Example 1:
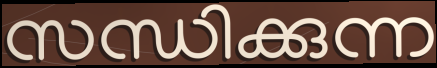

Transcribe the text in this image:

സന്ധിക്കുന്ന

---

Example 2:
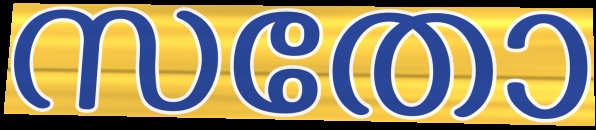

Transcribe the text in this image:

സതോ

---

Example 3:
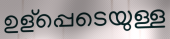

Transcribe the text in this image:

ഉള്പ്പെടെയുള്ള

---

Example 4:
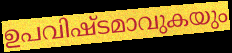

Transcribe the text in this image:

ഉപവിഷ്ടമാവുകയും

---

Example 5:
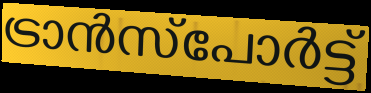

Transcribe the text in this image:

ട്രാൻസ്‌പോർട്ട്